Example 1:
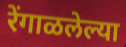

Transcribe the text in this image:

रेंगाळलेल्या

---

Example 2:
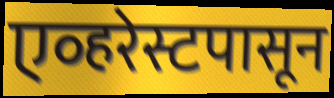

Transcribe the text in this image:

एव्हरेस्टपासून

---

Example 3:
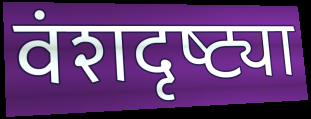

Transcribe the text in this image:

वंशदृष्ट्या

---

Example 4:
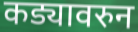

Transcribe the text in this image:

कड्यावरुन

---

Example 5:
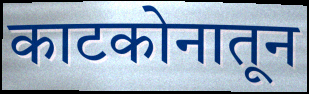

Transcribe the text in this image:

काटकोनातून